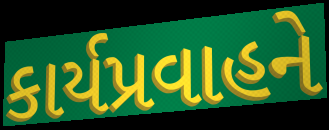
કાર્યપ્રવાહને